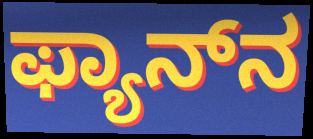
ಫ್ಯಾನ್‌ನ